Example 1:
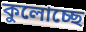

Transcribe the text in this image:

কুলোচ্ছে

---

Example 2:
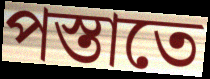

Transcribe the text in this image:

পস্তাতে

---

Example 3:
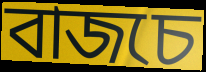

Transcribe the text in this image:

বাজচে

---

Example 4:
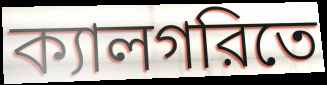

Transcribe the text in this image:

ক্যালগরিতে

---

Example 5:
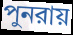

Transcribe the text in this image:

পুনরায়